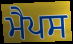
ਮੈਪਸ